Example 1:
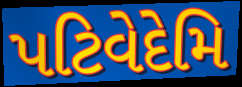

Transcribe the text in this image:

પટિવેદેમિ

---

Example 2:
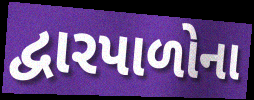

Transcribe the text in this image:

દ્વારપાળોના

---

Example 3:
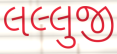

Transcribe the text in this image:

લલ્લુજી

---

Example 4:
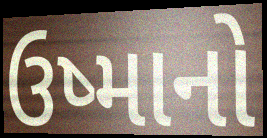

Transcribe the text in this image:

ઉષ્માનો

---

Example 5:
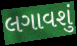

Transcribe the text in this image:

લગાવશું